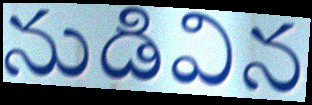
నుడివిన